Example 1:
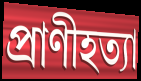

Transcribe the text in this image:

প্রাণীহত্যা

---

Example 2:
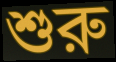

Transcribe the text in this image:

শুরু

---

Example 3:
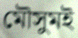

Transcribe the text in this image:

মৌসুমই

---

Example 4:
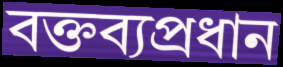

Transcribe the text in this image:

বক্তব্যপ্রধান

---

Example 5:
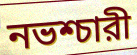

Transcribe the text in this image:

নভশ্চারী